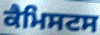
ਕੈਮਿਸਟਸ